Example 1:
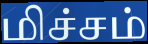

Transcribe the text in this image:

மிச்சம்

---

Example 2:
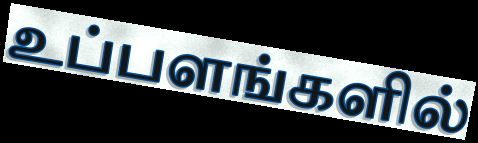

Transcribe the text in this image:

உப்பளங்களில்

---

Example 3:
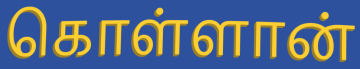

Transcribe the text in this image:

கொள்ளான்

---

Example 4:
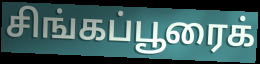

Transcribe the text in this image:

சிங்கப்பூரைக்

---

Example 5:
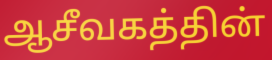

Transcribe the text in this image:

ஆசீவகத்தின்